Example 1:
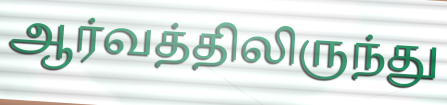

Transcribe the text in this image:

ஆர்வத்திலிருந்து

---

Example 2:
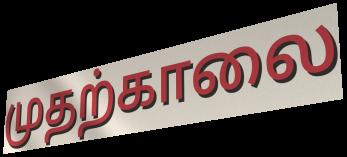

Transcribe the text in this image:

முதற்காலை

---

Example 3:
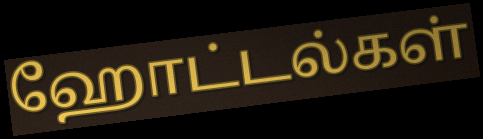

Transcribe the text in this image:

ஹோட்டல்கள்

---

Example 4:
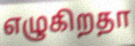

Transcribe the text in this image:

எழுகிறதா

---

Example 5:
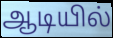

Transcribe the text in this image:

ஆடியில்